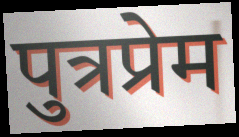
पुत्रप्रेम